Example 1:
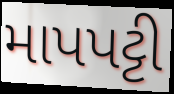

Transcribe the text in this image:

માપપટ્ટી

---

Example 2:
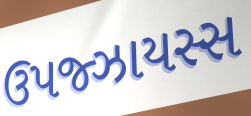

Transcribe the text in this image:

ઉપજ્ઝાયસ્સ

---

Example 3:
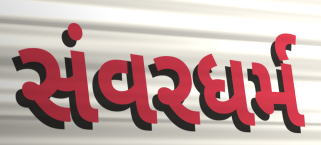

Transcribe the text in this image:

સંવરધર્મ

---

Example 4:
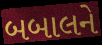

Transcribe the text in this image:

બબાલને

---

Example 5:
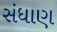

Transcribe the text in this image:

સંધાણ